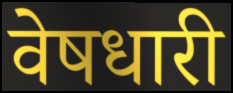
वेषधारी